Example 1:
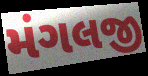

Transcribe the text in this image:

મંગલજી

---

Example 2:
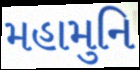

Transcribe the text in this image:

મહામુનિ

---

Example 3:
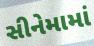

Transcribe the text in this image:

સીનેમામાં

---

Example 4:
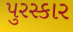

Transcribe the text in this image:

પુરસ્કાર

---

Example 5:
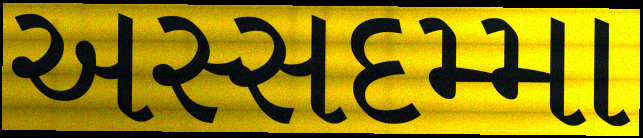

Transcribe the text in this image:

અસ્સદમ્મા